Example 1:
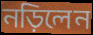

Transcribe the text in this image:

নড়িলেন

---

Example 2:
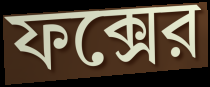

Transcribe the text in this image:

ফক্সের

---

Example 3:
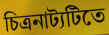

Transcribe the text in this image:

চিত্রনাট্যটিতে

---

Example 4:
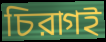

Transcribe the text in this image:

চিরাগই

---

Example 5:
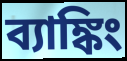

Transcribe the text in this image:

ব্যাঙ্কিং